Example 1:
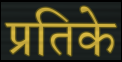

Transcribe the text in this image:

प्रतिके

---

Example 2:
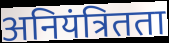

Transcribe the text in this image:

अनियंत्रितता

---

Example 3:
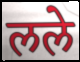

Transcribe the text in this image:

लले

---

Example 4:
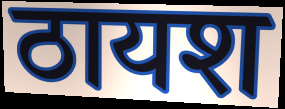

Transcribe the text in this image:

ठायश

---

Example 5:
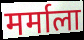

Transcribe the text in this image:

मर्माला